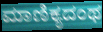
ಮಾಣಿಕ್ಯದಂಥ